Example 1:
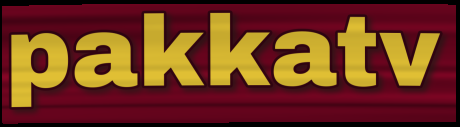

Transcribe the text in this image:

pakkatv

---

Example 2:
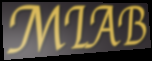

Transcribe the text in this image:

MIAB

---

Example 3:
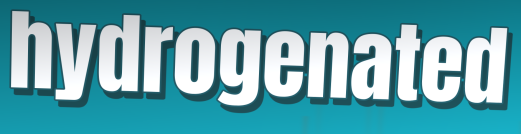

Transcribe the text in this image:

hydrogenated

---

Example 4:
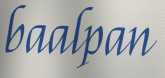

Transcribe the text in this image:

baalpan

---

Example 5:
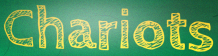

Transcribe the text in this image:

Chariots